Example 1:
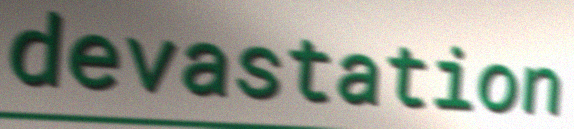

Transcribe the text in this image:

devastation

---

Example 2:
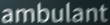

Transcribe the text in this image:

ambulant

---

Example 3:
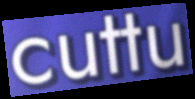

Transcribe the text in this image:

cuttu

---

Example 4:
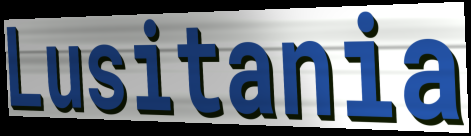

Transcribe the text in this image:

Lusitania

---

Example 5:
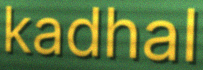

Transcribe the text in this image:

kadhal